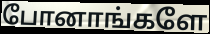
போனாங்களே